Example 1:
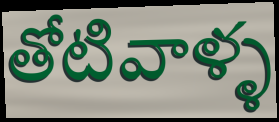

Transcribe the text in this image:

తోటివాళ్ళ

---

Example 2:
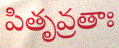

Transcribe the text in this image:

పితృవ్రతాః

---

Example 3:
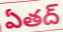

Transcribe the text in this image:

ఏతద్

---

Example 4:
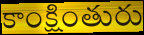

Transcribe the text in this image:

కాంక్షింతురు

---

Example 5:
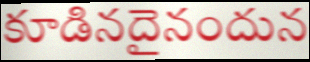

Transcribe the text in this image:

కూడినదైనందున